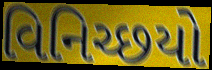
વિનિચ્છયો